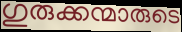
ഗുരുക്കന്മാരുടെ